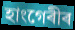
হাংগেৰীৰ